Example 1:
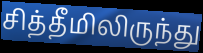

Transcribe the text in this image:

சித்தீமிலிருந்து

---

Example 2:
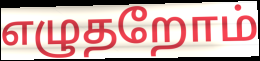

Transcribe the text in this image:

எழுதறோம்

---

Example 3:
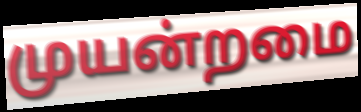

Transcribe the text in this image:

முயன்றமை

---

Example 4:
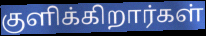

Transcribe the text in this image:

குளிக்கிறார்கள்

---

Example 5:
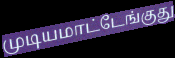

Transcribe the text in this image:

முடியமாட்டேங்குது